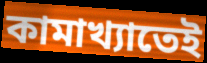
কামাখ্যাতেই